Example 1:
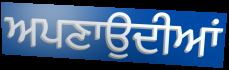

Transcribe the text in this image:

ਅਪਣਾਉਦੀਆਂ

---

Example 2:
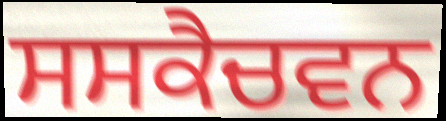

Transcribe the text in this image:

ਸਸਕੈਚਵਨ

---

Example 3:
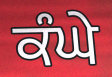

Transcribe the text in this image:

ਕੰਘੇ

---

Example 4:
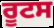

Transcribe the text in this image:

ਰੂਟਸ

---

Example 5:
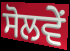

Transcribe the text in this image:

ਸੋਲਵੇਂ